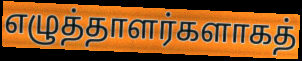
எழுத்தாளர்களாகத்